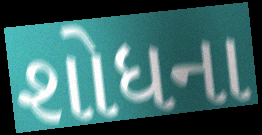
શોધના